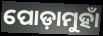
ପୋଡ଼ାମୁହାଁ